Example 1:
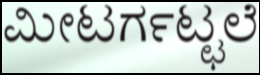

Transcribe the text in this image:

ಮೀಟರ್ಗಟ್ಟಲೆ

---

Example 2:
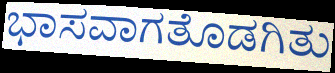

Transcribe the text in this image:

ಭಾಸವಾಗತೊಡಗಿತು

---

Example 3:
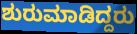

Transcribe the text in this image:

ಶುರುಮಾಡಿದ್ದರು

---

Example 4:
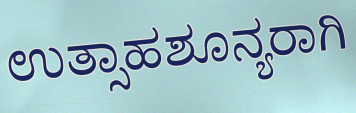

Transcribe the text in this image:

ಉತ್ಸಾಹಶೂನ್ಯರಾಗಿ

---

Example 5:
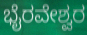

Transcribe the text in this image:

ಭೈರವೇಶ್ವರ